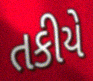
તકીયે